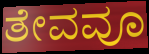
ತೇವವೂ